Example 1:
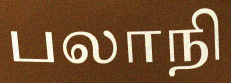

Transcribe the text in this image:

பலாநி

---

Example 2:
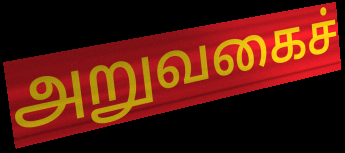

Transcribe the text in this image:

அறுவகைச்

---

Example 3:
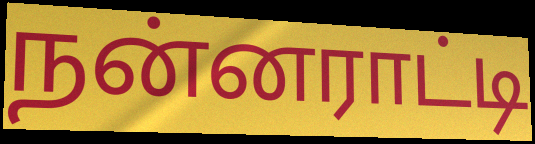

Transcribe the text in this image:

நன்னராட்டி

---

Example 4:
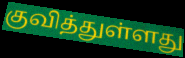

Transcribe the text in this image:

குவித்துள்ளது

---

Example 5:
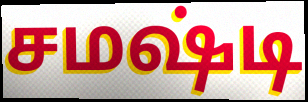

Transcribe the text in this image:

சமஷ்டி